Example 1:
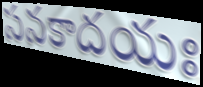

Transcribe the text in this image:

సనకాదయః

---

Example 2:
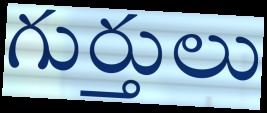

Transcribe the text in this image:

గుర్తులు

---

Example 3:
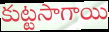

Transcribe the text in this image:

కుట్టసాగాయి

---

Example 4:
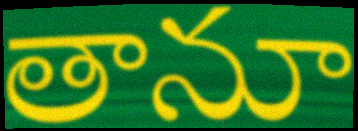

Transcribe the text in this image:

తానూ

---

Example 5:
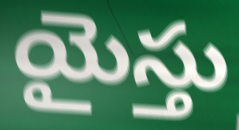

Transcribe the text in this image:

యైస్తు